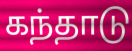
கந்தாடு